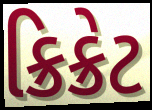
ક્રિક્રેટ